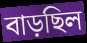
বাড়ছিল